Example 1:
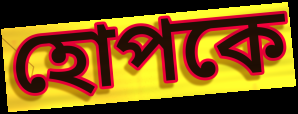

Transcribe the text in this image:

হোপকে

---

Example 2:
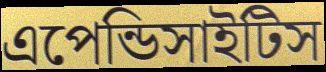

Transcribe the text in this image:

এপেন্ডিসাইটিস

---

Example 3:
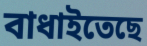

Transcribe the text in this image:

বাধাইতেছে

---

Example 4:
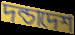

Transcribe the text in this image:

দন্ডাদেশ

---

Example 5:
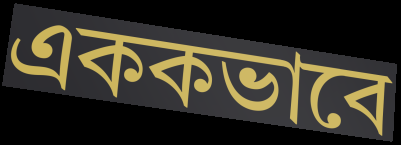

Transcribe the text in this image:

এককভাবে